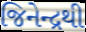
જિનેન્દ્રથી